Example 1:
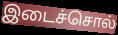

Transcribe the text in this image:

இடைச்சொல்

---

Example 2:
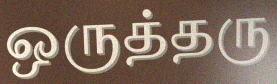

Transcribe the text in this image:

ஒருத்தரு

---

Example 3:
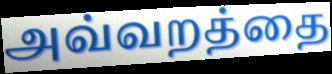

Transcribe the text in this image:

அவ்வறத்தை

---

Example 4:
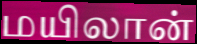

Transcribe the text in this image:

மயிலான்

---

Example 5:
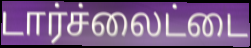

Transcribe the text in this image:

டார்ச்லைட்டை